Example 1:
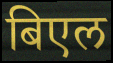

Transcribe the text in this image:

बिएल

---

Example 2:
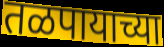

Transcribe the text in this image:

तळपायाच्या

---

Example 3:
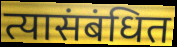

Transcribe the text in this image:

त्यासंबंधित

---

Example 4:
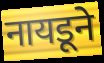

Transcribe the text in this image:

नायडूने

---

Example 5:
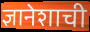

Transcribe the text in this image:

ज्ञानेशाची